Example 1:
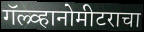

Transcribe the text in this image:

गॅल्व्हानोमीटराचा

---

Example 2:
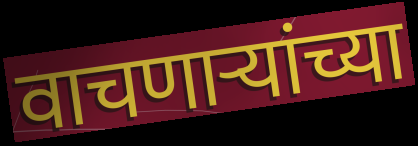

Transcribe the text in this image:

वाचणार्‍यांच्या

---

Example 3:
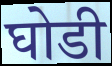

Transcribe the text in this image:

घोडी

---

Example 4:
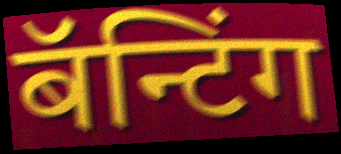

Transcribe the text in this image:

बॅन्टिंग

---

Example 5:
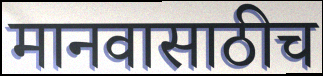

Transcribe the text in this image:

मानवासाठीच